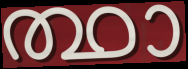
ത്ഥാ